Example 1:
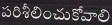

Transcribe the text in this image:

పరిశీలించుకోవాలి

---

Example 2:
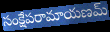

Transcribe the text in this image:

సంక్షేపరామాయణమ్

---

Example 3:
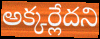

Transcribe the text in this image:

అక్కర్లేదని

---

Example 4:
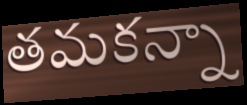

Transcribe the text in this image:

తమకన్నా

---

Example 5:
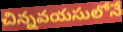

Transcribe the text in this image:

చిన్నవయసులోనే